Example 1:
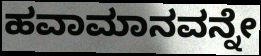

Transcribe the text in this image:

ಹವಾಮಾನವನ್ನೇ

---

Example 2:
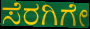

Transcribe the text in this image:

ಸೆರಗಿಗೇ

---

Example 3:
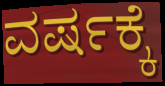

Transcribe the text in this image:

ವರ್ಷಕ್ಕೆ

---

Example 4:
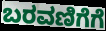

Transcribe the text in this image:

ಬರವಣಿಗೆಗೆ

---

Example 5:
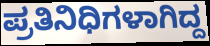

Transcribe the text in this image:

ಪ್ರತಿನಿಧಿಗಳಾಗಿದ್ದ